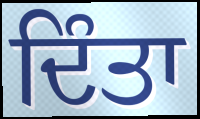
ਦਿੰਤਾ